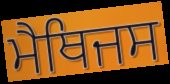
ਮੈਥਿਜਸ